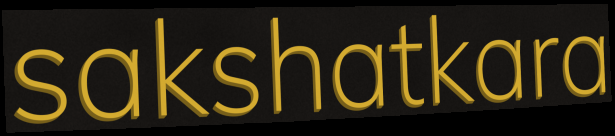
sakshatkara